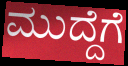
ಮುದ್ದೆಗೆ